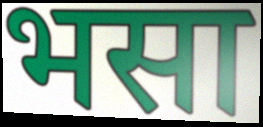
भसा